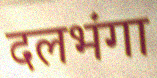
दलभंगा